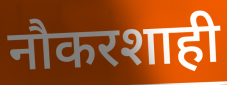
नौकरशाही